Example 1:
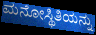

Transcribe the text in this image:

ಮನೋಸ್ಥಿತಿಯನ್ನು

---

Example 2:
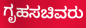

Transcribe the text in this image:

ಗೃಹಸಚಿವರು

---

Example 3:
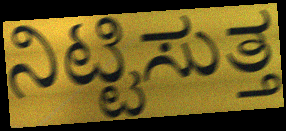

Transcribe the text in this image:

ನಿಟ್ಟಿಸುತ್ತ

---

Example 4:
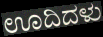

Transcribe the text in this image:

ಊದಿದಳು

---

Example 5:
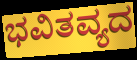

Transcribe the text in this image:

ಭವಿತವ್ಯದ